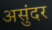
असुंदर